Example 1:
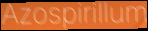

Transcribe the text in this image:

Azospirillum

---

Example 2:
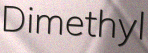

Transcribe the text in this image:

Dimethyl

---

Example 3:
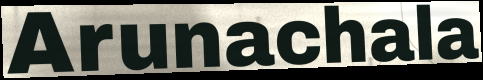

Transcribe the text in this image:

Arunachala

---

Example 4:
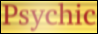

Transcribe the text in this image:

Psychic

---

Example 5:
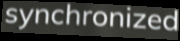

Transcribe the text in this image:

synchronized